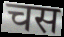
चस